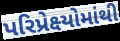
પરિપ્રેક્ષ્યોમાંથી